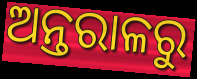
ଅନ୍ତରାଳରୁ